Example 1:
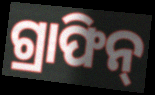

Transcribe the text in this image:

ଗ୍ରାଫିନ୍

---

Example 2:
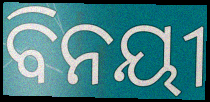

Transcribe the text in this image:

ବିନୟୀ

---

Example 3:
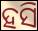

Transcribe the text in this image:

ହସି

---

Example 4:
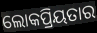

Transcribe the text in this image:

ଲୋକପ୍ରିୟତାର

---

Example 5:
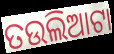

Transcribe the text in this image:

ତଉଲିଆଟା